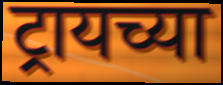
ट्रायच्या